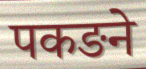
पकङने